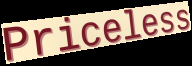
Priceless